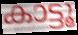
കാട്ടൂ